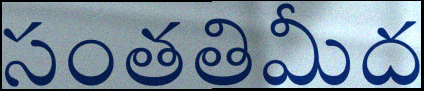
సంతతిమీద